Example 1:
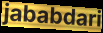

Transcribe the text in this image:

jababdari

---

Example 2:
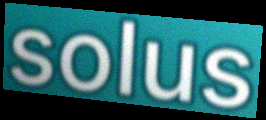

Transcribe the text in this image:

solus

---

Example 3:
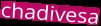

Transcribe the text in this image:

chadivesa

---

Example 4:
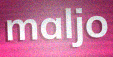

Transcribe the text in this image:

maljo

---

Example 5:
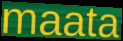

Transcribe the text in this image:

maata